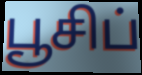
பூசிப்